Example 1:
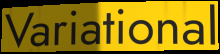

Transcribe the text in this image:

Variational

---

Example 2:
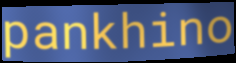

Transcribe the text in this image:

pankhino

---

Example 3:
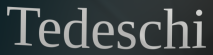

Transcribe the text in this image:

Tedeschi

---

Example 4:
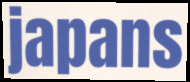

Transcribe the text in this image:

japans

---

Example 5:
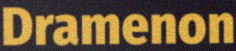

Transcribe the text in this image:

Dramenon